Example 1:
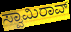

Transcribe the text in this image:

ಸ್ವಾಮಿರಾವ್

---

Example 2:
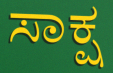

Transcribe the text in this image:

ಸಾಕ್ಷ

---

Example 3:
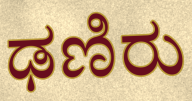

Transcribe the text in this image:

ಢಣಿರು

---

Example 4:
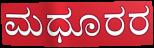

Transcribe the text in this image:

ಮಧೂರರ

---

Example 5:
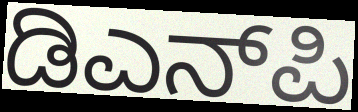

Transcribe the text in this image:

ಡಿಎನ್‌ಪಿ